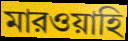
মারওয়াহি